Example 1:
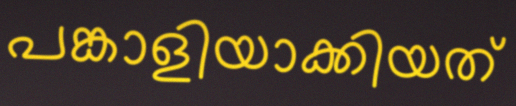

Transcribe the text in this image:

പങ്കാളിയാക്കിയത്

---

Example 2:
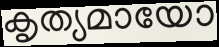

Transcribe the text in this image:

കൃത്യമായോ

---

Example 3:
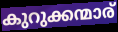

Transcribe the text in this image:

കുറുക്കന്മാര്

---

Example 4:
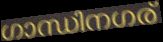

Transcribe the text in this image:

ഗാന്ധിനഗര്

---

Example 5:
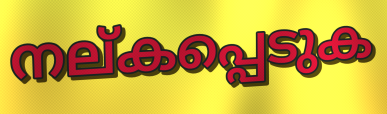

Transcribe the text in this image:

നല്കപ്പെടുക